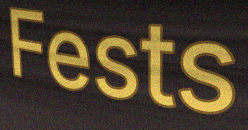
Fests